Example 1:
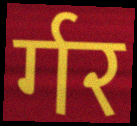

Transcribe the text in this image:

र्गर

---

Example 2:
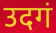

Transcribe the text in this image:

उदगं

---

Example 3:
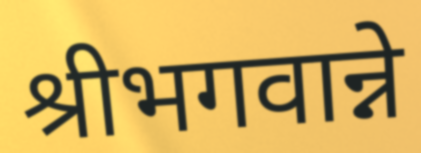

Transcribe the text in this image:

श्रीभगवान्ने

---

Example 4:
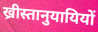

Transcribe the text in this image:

ख्रीस्तानुयायियों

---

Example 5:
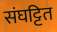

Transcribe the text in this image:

संघट्टित